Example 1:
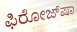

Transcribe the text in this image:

ಫಿರೋಜ್‌ಷಾ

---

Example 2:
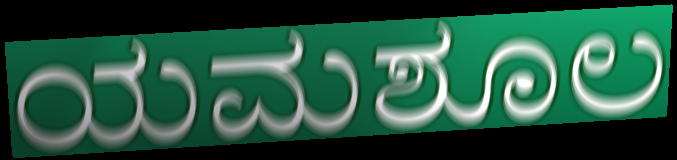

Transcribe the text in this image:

ಯಮಶೂಲ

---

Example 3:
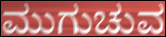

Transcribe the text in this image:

ಮುಗುಚುವ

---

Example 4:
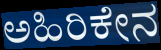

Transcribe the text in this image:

ಅಹಿರಿಕೇನ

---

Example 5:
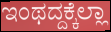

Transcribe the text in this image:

ಇಂಥದ್ದಕ್ಕೆಲ್ಲಾ